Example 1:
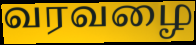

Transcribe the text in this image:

வரவழை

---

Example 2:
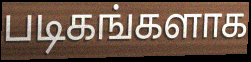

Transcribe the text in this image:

படிகங்களாக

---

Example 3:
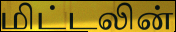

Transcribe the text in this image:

மிட்டலின்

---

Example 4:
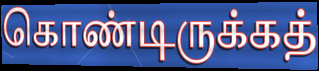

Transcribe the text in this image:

கொண்டிருக்கத்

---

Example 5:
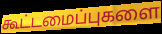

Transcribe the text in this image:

கூட்டமைப்புகளை